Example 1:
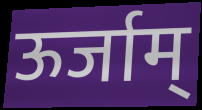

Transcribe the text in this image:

ऊर्जाम्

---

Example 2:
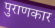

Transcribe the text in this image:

पुराणकार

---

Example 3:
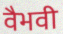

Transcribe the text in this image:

वैभवी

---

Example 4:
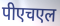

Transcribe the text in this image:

पीएचएल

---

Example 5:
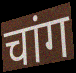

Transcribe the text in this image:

चांग